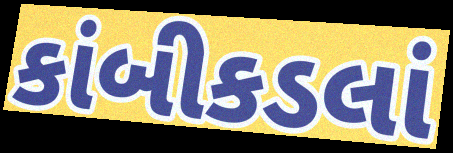
કાંબીકડલાં